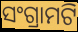
ସଂଗ୍ରାମଟି